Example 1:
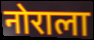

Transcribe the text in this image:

नोराला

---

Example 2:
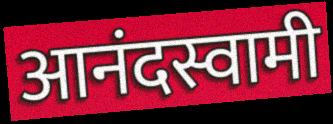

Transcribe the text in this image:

आनंदस्वामी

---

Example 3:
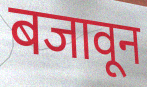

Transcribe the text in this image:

बजावून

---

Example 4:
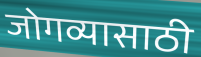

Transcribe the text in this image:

जोगव्यासाठी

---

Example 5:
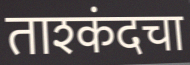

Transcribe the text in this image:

ताश्कंदचा